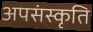
अपसंस्कृति